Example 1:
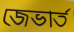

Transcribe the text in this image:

জেভার্ত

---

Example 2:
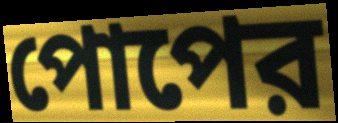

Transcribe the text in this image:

পোপের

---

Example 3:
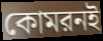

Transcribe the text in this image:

কোমরনই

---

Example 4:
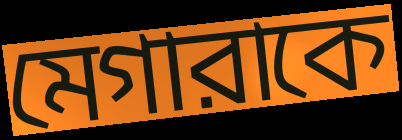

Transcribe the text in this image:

মেগারাকে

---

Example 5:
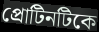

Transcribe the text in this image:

প্রোটিনটিকে